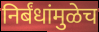
निर्बंधांमुळेच